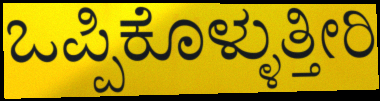
ಒಪ್ಪಿಕೊಳ್ಳುತ್ತೀರಿ